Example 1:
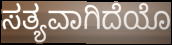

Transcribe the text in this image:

ಸತ್ಯವಾಗಿದೆಯೊ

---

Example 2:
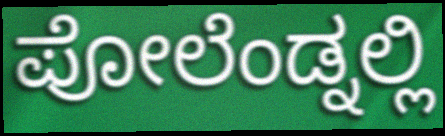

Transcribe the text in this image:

ಪೋಲೆಂಡ್ನಲ್ಲಿ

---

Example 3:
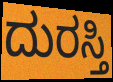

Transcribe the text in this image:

ದುರಸ್ತಿ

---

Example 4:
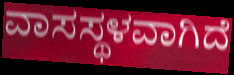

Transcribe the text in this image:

ವಾಸಸ್ಥಳವಾಗಿದೆ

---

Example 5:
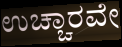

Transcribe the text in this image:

ಉಚ್ಚಾರವೇ